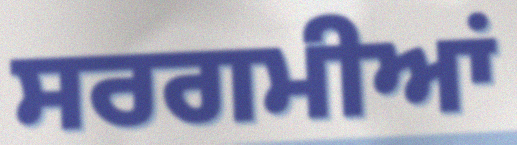
ਸਰਗਮੀਆਂ